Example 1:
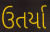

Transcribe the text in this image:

ઉતર્યા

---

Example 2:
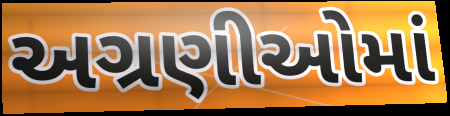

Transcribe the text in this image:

અગ્રણીઓમાં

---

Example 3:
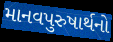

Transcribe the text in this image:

માનવપુરુષાર્થનો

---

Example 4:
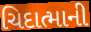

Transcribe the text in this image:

ચિદાત્માની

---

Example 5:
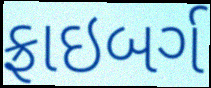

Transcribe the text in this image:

ફ્રાઇબર્ગ